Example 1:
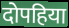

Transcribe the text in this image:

दोपहिया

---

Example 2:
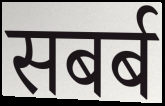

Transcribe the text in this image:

सबर्ब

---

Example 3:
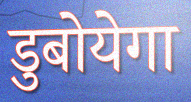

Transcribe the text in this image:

डुबोयेगा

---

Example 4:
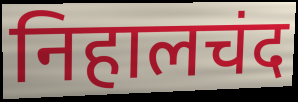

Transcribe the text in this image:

निहालचंद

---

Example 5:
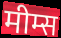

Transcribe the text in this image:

मीम्‍स